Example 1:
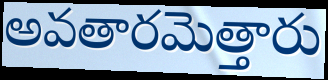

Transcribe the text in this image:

అవతారమెత్తారు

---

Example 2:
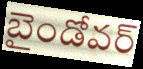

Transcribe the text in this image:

బైండోవర్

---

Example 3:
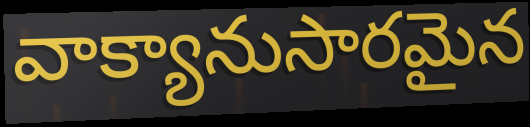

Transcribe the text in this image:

వాక్యానుసారమైన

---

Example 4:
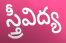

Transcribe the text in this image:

స్త్రీవిద్య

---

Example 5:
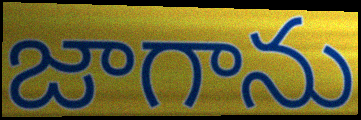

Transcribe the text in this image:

జాగాను